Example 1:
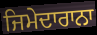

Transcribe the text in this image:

ਜਿਮੇਦਾਰਾਨਾ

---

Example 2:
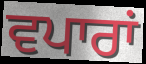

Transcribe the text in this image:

ਵਪਾਰਾਂ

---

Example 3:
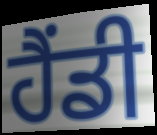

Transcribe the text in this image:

ਹੈਂਡੀ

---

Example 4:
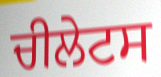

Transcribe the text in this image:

ਚੀਲੇਟਸ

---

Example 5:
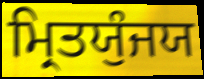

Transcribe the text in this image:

ਮ੍ਰਿਤਯੁੰਜਯ